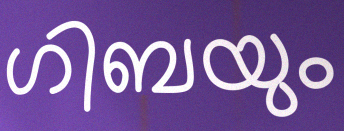
ഗിബയും